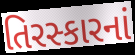
તિરસ્કારનાં